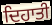
ਦਿਹਾਤੀ